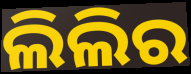
ଲିଲିର